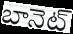
బానెట్